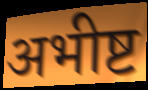
अभीष्ट